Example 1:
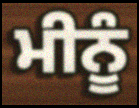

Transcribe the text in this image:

ਮੀਨੂੰ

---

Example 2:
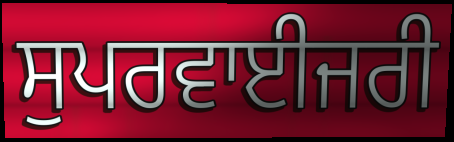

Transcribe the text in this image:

ਸੁਪਰਵਾਈਜਰੀ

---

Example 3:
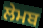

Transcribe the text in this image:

ਲੇਮਬ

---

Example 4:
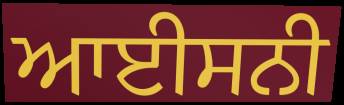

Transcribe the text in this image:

ਆਈਸਨੀ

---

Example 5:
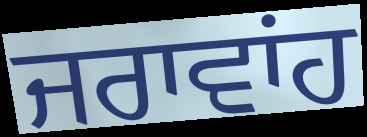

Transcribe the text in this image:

ਜਰਾਵਾਂਹ